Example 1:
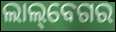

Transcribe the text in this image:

ଲାଲ୍‌ବେଗର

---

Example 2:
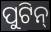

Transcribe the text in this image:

ପୁଟିନ୍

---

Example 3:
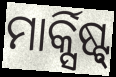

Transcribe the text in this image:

ମାର୍କ୍ସିଷ୍ଟ୍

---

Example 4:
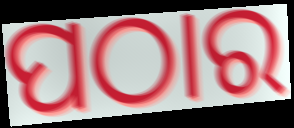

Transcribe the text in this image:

ପଠାର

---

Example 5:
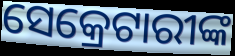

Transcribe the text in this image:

ସେକ୍ରେଟାରୀଙ୍କ